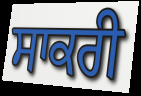
ਸਾਕਰੀ